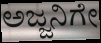
ಅಜ್ಜನಿಗೇ